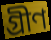
গ্ৰীণ